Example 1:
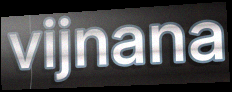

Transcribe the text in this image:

vijnana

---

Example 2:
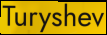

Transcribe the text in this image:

Turyshev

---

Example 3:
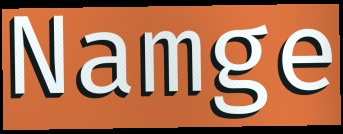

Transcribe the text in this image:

Namge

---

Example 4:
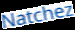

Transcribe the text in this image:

Natchez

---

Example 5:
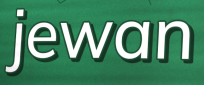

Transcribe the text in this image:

jewan